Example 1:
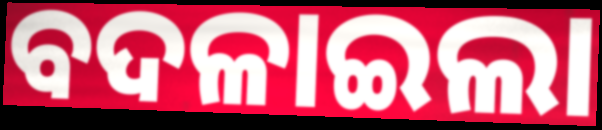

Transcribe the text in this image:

ବଦଳାଇଲା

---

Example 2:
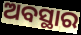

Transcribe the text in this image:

ଅବସ୍ଥାର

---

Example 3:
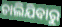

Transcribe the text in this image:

ଚାଲିଯିବାରୁ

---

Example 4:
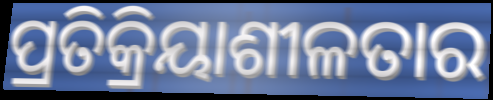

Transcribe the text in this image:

ପ୍ରତିକ୍ରିୟାଶୀଳତାର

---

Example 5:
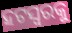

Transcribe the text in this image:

ହଟସ୍ଵରକୁ